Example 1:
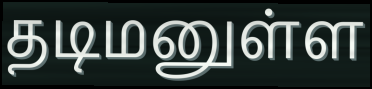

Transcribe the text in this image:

தடிமனுள்ள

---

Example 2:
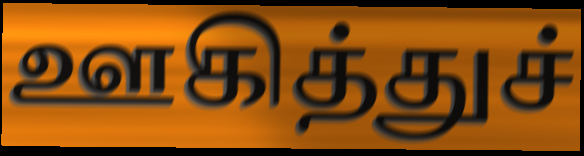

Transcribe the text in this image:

ஊகித்துச்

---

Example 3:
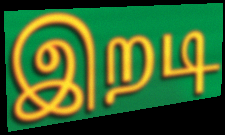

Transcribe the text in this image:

இறடி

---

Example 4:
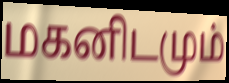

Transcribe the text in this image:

மகனிடமும்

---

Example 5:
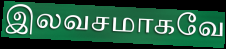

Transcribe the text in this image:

இலவசமாகவே